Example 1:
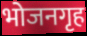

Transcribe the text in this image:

भोजनगृह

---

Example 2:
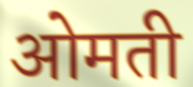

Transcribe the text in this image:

ओमती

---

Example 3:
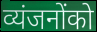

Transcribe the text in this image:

व्यंजनोंको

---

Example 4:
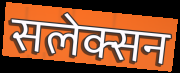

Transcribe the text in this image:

सलेक्सन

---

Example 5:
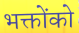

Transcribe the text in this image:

भक्तोंको